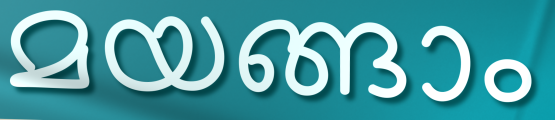
മയങ്ങാം